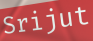
Srijut